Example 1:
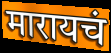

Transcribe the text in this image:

मारायचं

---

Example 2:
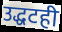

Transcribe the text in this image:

उद्धटही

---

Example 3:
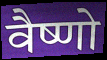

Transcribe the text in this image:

वैष्णो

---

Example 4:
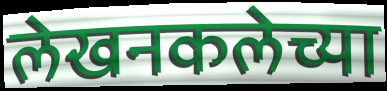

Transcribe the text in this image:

लेखनकलेच्या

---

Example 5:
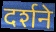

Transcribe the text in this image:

दर्शने